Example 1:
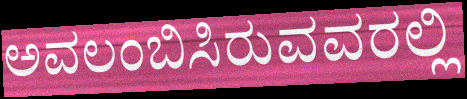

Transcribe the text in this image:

ಅವಲಂಬಿಸಿರುವವರಲ್ಲಿ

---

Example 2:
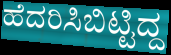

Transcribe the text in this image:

ಹೆದರಿಸಿಬಿಟ್ಟಿದ್ದ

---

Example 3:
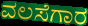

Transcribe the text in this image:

ವಲಸೆಗಾರ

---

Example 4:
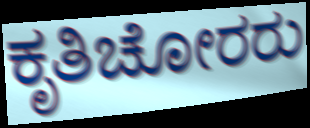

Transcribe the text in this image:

ಕೃತಿಚೋರರು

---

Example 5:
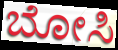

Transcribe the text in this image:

ಬೋಸಿ